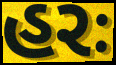
હરઃ